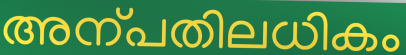
അന്പതിലധികം